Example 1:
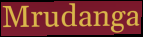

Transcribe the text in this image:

Mrudanga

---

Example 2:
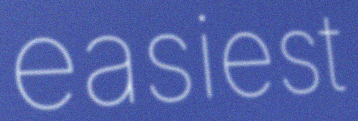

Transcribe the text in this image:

easiest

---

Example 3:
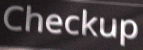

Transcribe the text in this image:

Checkup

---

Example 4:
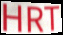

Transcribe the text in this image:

HRT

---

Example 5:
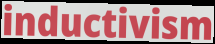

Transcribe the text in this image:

inductivism